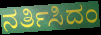
ನರ್ತಿಸಿದಂ